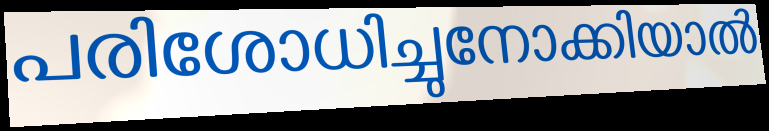
പരിശോധിച്ചുനോക്കിയാൽ